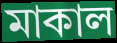
মাকাল